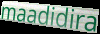
maadidira